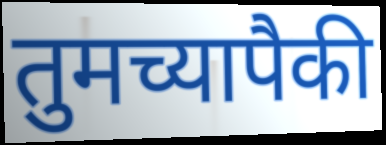
तुमच्यापैकी